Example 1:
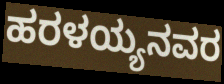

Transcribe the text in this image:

ಹರಳಯ್ಯನವರ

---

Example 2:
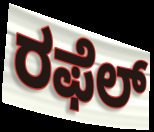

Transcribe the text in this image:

ರಫೆಲ್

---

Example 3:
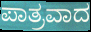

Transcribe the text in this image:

ಪಾತ್ರವಾದ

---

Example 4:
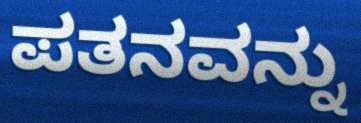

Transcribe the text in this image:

ಪತನವನ್ನು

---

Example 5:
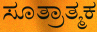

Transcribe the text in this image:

ಸೂತ್ರಾತ್ಮಕ